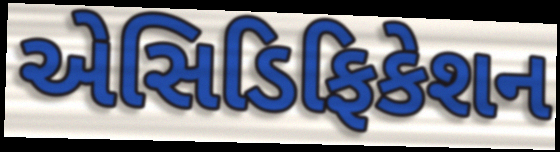
એસિડિફિકેશન